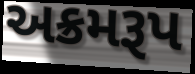
અક્રમરૂપ